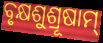
ବୃକ୍ଷଶୁଶ୍ରୂଷାମ୍